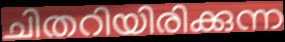
ചിതറിയിരിക്കുന്ന